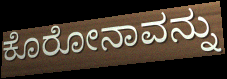
ಕೊರೋನಾವನ್ನು